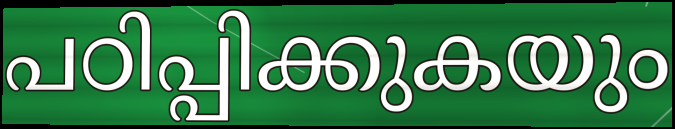
പഠിപ്പിക്കുകയും